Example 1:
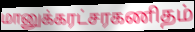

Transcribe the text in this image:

மானுக்கரட்சரகணிதம்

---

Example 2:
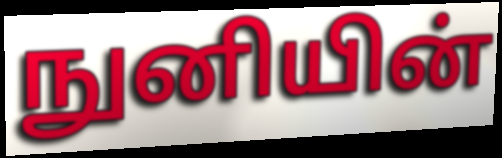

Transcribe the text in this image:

நுனியின்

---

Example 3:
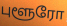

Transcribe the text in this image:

புளூரோ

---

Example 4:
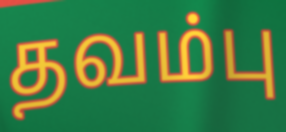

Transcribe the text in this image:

தவம்பு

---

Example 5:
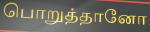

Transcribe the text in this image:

பொறுத்தானோ